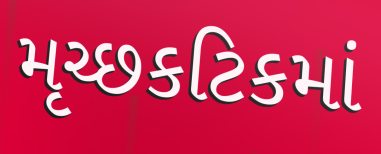
મૃચ્છકટિકમાં